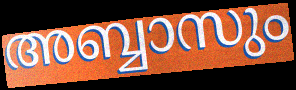
അബ്ബാസും